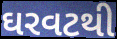
ઘરવટથી